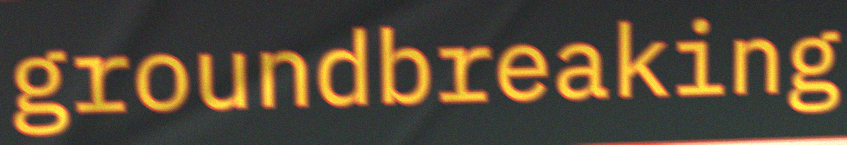
groundbreaking